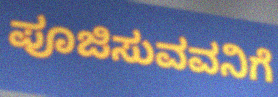
ಪೂಜಿಸುವವನಿಗೆ